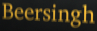
Beersingh